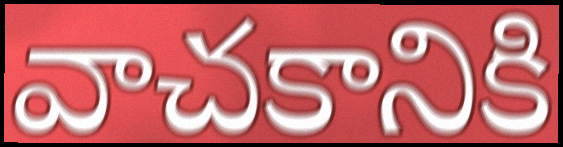
వాచకానికి